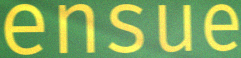
ensue